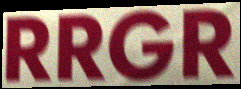
RRGR